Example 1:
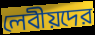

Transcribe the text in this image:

লেবীয়দের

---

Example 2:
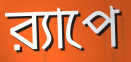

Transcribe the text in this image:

র‍্যাপে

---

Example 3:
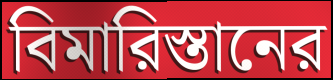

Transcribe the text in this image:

বিমারিস্তানের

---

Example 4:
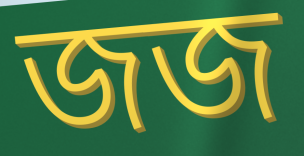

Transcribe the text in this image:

জজ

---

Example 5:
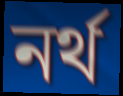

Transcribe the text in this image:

নর্থ